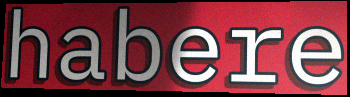
habere